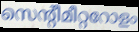
സെന്റീമീറ്ററോളം